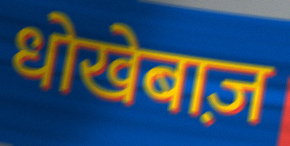
धोखेबाज़